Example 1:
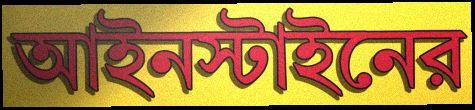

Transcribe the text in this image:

আইনস্টাইনের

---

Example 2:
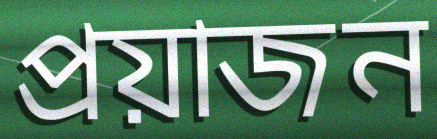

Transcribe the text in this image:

প্রয়াজন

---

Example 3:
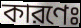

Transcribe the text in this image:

কারণেঃ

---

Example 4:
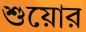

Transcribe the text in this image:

শুয়োর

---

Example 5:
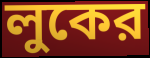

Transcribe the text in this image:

লুকের